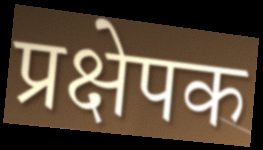
प्रक्षेपक